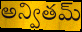
అన్వితమ్